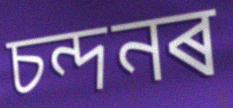
চন্দনৰ